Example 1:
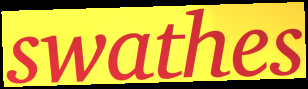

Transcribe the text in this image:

swathes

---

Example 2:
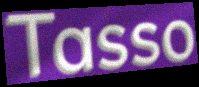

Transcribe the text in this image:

Tasso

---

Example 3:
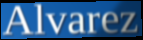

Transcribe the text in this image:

Alvarez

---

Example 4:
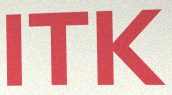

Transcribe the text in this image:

ITK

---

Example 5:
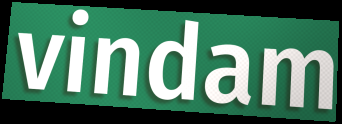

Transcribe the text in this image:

vindam